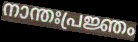
നാന്തഃപ്രജ്ഞം